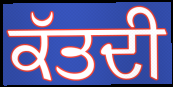
ਕੱਤਦੀ